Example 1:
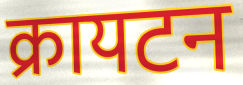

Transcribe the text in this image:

क्रायटन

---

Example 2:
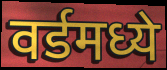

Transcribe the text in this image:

वर्डमध्ये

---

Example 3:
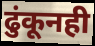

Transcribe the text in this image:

ढुंकूनही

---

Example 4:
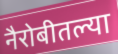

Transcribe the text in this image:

नैरोबीतल्या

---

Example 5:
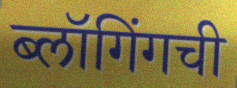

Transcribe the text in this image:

ब्लॉगिंगची